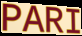
PARI